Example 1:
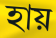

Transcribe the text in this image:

হায়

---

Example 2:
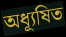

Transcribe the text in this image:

অধ্যূষিত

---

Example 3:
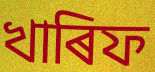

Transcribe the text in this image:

খাৰিফ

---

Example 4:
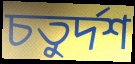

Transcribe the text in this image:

চতুৰ্দশ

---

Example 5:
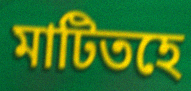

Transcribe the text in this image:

মাটিতহে